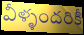
వీళ్ళందరికీ